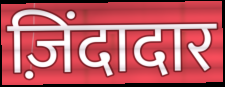
ज़िंदादार